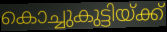
കൊച്ചുകുട്ടിയ്ക്ക്